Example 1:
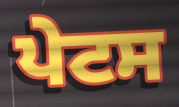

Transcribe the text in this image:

ਪੇਟਸ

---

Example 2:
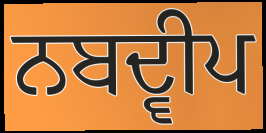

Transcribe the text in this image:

ਨਬਦ੍ਵੀਪ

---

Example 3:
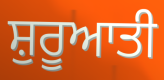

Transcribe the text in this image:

ਸ਼ੁਰੂਆਤੀ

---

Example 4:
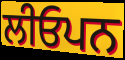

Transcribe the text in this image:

ਲੀਓਪਨ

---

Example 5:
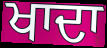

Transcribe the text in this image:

ਖਾਦਾ